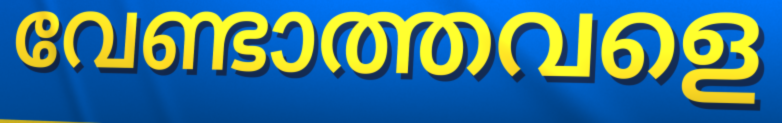
വേണ്ടാത്തവളെ